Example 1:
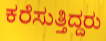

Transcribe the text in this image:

ಕರೆಸುತ್ತಿದ್ದರು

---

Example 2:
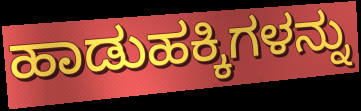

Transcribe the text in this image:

ಹಾಡುಹಕ್ಕಿಗಳನ್ನು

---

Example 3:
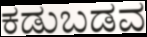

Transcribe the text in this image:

ಕಡುಬಡವ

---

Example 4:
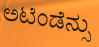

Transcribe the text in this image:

ಅಟೆಂಡೆನ್ಸು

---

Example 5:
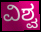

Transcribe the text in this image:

ವಿಶ್ವ